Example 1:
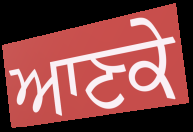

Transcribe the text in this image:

ਆਣਕੇ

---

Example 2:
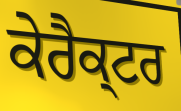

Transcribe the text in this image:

ਕੇਰੈਕ੍ਟਰ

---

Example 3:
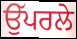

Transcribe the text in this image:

ਉੱਪਰਲੇ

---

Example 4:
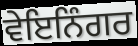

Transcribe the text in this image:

ਵੇਇਨਿੰਗਰ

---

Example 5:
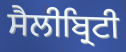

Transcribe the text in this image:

ਸੈਲੀਬ੍ਰਿਟੀ